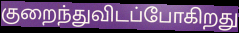
குறைந்துவிடப்போகிறது